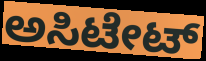
ಅಸಿಟೇಟ್